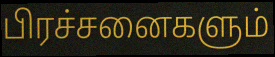
பிரச்சனைகளும்